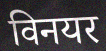
विनयर